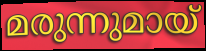
മരുന്നുമായ്